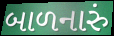
બાળનારું